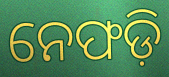
ନେଫଡ଼ି